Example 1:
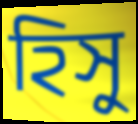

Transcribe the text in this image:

হিসু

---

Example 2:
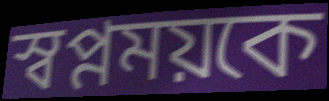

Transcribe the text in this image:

স্বপ্নময়কে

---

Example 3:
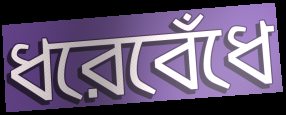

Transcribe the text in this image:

ধরেবেঁধে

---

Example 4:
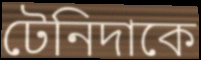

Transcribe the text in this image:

টেনিদাকে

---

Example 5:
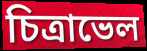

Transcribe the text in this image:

চিত্রাভেল